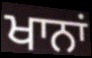
ਖਾਨਾਂ